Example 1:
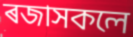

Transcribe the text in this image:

ৰজাসকলে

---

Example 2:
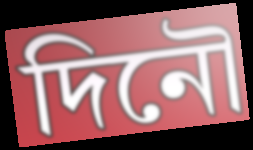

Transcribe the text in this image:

দিনৌ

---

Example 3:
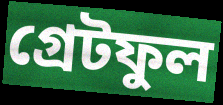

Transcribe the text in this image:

গ্ৰেটফুল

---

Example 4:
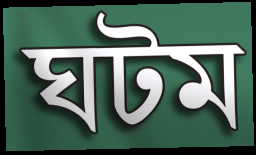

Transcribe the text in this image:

ঘটম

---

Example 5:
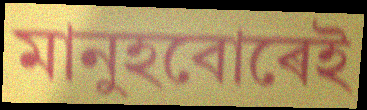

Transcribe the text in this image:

মানুহবোৰেই